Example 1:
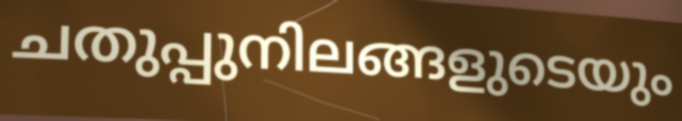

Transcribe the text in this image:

ചതുപ്പുനിലങ്ങളുടെയും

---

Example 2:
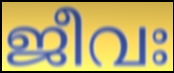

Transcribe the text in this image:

ജീവഃ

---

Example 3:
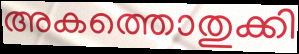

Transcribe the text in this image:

അകത്തൊതുക്കി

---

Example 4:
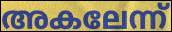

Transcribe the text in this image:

അകലേന്ന്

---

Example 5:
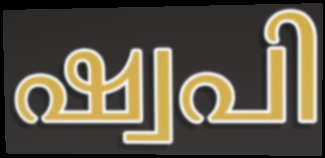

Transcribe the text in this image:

ഷ്വപി